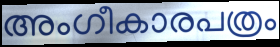
അംഗീകാരപത്രം